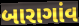
બારાગાંવ